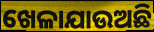
ଖେଳାଯାଉଅଛି